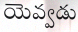
యెవ్వడు